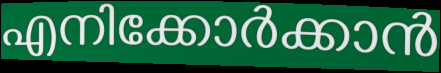
എനിക്കോർക്കാൻ